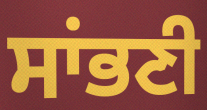
ਸਾਂਭਣੀ